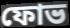
ফোভ